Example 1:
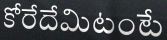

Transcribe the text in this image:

కోరేదేమిటంటే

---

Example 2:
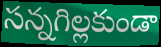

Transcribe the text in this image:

సన్నగిల్లకుండా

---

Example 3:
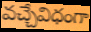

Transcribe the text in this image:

వచ్చేవిధంగా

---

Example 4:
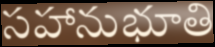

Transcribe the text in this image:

సహానుభూతి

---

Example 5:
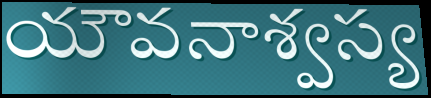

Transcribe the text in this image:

యౌవనాశ్వస్య